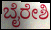
ಬೈರೇಶಿ